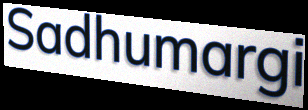
Sadhumargi